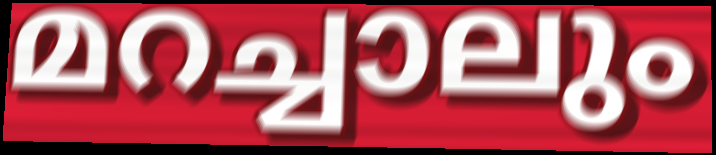
മറച്ചാലും